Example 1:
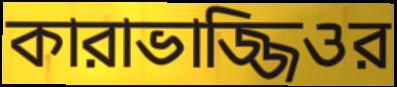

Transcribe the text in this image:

কারাভাজ্জিওর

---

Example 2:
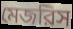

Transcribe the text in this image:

মেজরিস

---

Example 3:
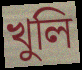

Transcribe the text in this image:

খুলি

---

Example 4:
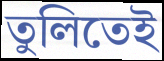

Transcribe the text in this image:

তুলিতেই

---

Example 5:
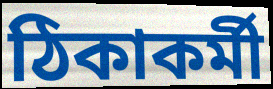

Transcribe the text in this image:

ঠিকাকর্মী